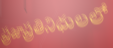
ప్రజాప్రతినిధులలో